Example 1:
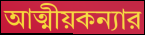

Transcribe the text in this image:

আত্মীয়কন্যার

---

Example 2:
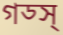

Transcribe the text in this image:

গড্স্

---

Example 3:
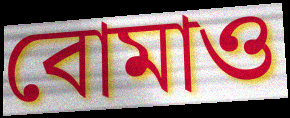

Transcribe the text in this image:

বোমাও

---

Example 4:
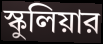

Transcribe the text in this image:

স্কুলিয়ার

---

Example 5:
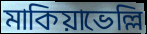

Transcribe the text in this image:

মাকিয়াভেল্লি